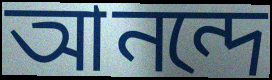
আনন্দে